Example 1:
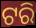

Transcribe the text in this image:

ଟରି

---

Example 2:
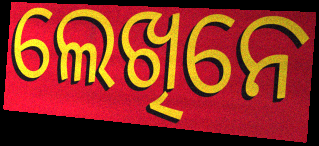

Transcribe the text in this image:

ଲେଖିନେ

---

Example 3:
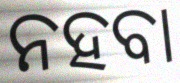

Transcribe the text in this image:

ନହବା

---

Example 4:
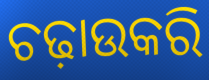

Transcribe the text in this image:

ଚଢ଼ାଉକରି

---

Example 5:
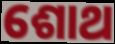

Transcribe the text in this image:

ଶୋଥ